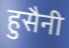
हुसैनी